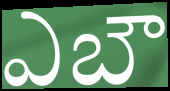
ఎబౌ